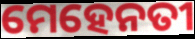
ମେହେନତୀ